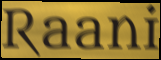
Raani